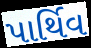
પાર્થિવ